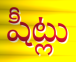
షీట్లు